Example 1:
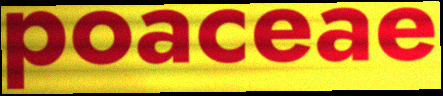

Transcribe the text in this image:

poaceae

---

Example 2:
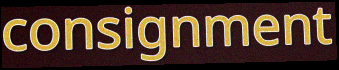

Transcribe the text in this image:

consignment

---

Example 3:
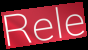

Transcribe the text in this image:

Rele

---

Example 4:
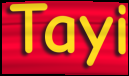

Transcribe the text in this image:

Tayi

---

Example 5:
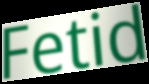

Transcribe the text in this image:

Fetid